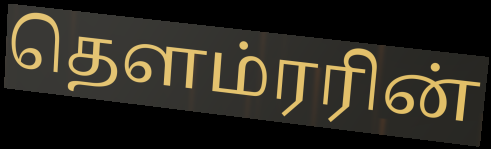
தௌம்ரரின்